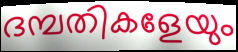
ദമ്പതികളേയും